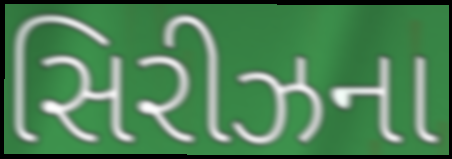
સિરીઝના